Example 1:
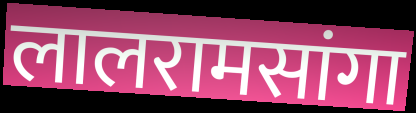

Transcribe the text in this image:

लालरामसांगा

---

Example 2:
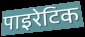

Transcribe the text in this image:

पाइरेटिक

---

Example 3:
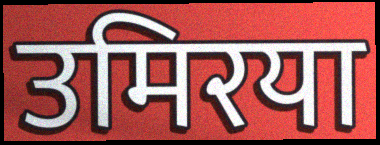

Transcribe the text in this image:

उमिरया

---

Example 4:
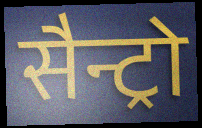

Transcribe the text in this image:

सैन्ट्रो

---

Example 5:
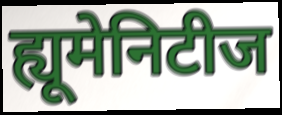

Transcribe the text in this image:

ह्यूमेनिटीज